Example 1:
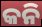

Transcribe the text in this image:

କନି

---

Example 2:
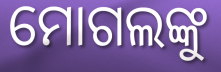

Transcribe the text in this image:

ମୋଗଲଙ୍କୁ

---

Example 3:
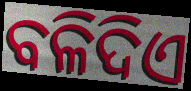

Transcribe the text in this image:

ବଳିଦିଏ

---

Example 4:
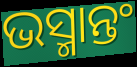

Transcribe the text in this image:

ଭସ୍ମାନ୍ତଂ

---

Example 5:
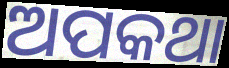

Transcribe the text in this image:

ଅପକଥା